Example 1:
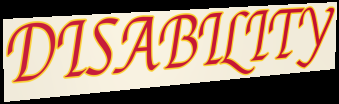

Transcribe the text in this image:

DISABILITY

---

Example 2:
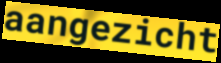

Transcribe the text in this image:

aangezicht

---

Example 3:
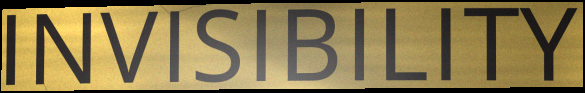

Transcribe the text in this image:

INVISIBILITY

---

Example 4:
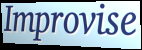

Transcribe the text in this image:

Improvise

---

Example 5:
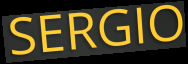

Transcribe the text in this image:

SERGIO